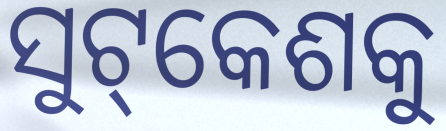
ସୁଟ୍‌କେଶକୁ